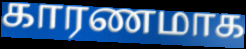
காரணமாக